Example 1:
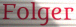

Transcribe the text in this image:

Folger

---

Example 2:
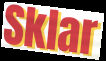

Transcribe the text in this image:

Sklar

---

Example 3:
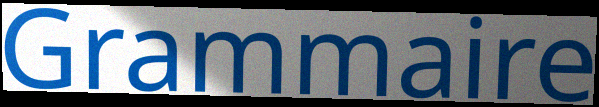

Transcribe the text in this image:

Grammaire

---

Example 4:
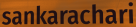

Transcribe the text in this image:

sankarachari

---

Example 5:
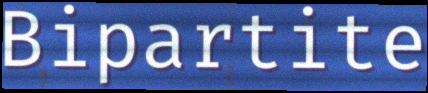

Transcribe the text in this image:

Bipartite